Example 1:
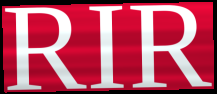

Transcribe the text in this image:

RIR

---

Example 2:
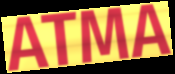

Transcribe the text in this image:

ATMA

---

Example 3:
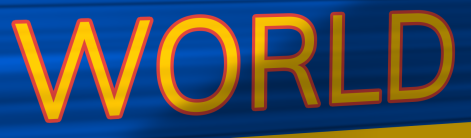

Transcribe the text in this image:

WORLD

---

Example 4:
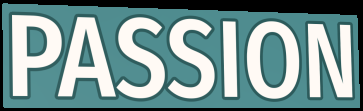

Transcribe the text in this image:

PASSION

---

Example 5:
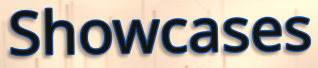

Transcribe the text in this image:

Showcases